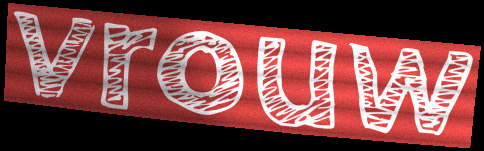
vrouw